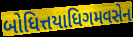
બોધિત્તયાધિગમવસેન